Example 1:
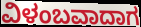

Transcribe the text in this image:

ವಿಳಂಬವಾದಾಗ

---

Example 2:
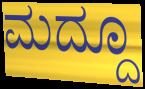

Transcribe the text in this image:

ಮದ್ದೂ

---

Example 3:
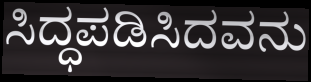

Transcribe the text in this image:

ಸಿದ್ಧಪಡಿಸಿದವನು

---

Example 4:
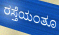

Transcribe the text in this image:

ರಸ್ತೆಯಂತೂ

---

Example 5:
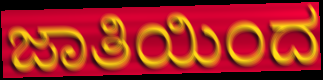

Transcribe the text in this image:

ಜಾತಿಯಿಂದ